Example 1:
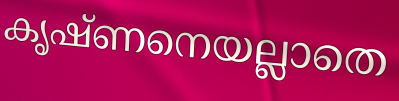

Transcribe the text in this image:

കൃഷ്ണനെയല്ലാതെ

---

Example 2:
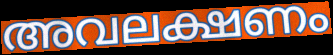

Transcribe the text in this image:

അവലക്ഷണം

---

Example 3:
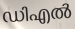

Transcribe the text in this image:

ഡിഎൽ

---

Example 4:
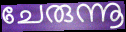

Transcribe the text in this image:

ചേരുന്നൂ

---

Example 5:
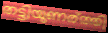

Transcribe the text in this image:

തട്ടിയുണര്ത്തി